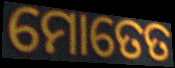
ମୋତେତ